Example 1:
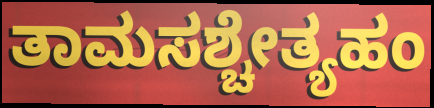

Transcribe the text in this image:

ತಾಮಸಶ್ಚೇತ್ಯಹಂ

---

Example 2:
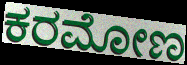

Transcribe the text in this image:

ಕರಮೋಣ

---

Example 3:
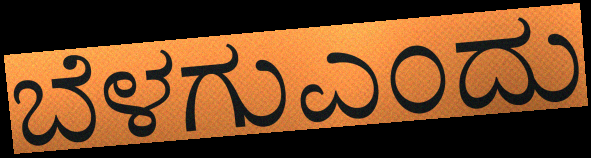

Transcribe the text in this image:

ಬೆಳಗುಎಂದು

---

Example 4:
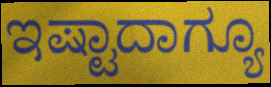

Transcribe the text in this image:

ಇಷ್ಟಾದಾಗ್ಯೂ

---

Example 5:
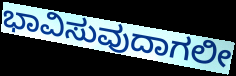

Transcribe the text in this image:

ಭಾವಿಸುವುದಾಗಲೀ